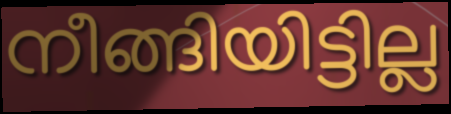
നീങ്ങിയിട്ടില്ല